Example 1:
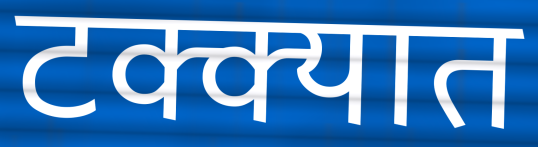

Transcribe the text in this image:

टक्क्यात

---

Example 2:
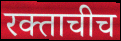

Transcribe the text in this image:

रक्ताचीच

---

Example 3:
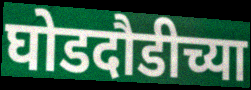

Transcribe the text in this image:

घोडदौडीच्या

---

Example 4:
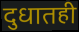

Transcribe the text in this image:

दुधातही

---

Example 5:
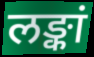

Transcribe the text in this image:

लङ्कां